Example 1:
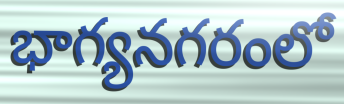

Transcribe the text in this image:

భాగ్యనగరంలో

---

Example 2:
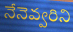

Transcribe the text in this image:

నేనెవ్వరిని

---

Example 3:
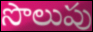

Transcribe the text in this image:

సొలుపు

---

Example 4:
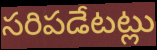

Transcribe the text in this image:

సరిపడేటట్లు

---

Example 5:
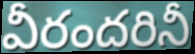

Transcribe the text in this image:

వీరందరినీ